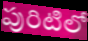
పురిటిలో